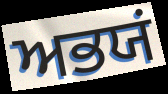
ਅਭਯਂ